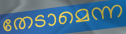
തേടാമെന്ന